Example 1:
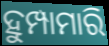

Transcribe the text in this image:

ହୁମ୍ପାମାରି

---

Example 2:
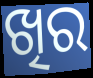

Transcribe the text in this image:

ଖିର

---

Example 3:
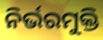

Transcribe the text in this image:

ନିର୍ଭରମୁକ୍ତି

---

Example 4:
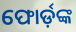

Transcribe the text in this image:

ଫୋର୍ଡ଼ଙ୍କ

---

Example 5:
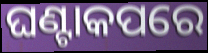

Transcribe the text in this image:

ଘଣ୍ଟାକପରେ